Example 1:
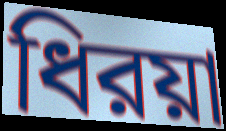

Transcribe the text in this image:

ধিরয়া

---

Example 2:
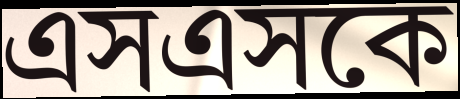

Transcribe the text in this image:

এসএসকে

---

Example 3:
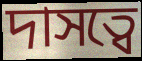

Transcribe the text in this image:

দাসত্বে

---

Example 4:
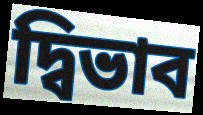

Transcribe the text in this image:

দ্বিভাব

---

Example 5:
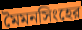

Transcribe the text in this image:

মৈমনসিংহের